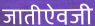
जातीऐवजी